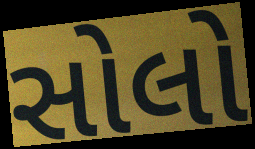
સોલો